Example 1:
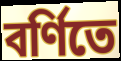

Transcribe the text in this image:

বর্ণিতে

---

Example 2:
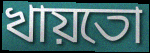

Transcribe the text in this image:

খায়তো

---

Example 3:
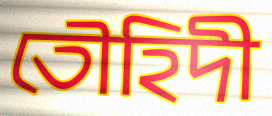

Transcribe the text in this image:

তৌহিদী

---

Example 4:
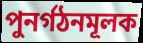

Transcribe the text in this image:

পুনর্গঠনমূলক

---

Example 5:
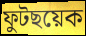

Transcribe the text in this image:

ফুটছয়েক